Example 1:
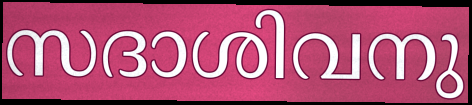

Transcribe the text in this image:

സദാശിവനു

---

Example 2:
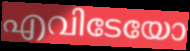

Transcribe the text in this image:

എവിടേയോ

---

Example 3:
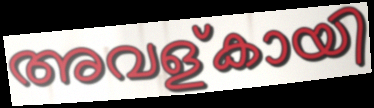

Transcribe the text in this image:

അവള്കായി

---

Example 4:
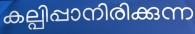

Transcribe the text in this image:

കല്പിപ്പാനിരിക്കുന്ന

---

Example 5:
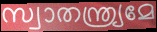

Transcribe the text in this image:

സ്വാതന്ത്ര്യമേ